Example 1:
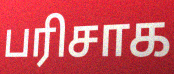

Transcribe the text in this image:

பரிசாக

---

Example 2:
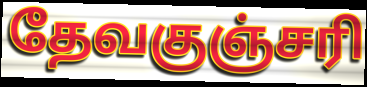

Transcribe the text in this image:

தேவகுஞ்சரி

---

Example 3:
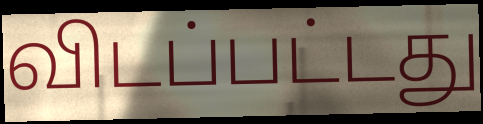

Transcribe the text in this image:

விடப்பட்டது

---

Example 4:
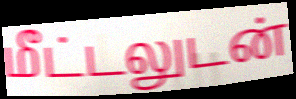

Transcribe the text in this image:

மீட்டலுடன்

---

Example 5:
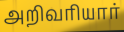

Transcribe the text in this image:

அறிவரியார்